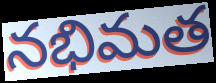
నభిమత